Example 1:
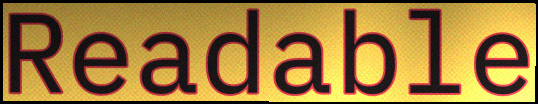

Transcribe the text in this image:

Readable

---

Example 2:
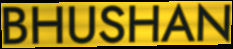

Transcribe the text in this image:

BHUSHAN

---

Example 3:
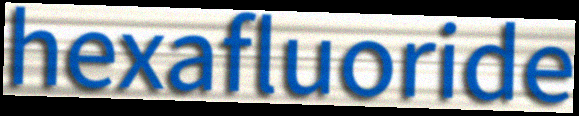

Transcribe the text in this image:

hexafluoride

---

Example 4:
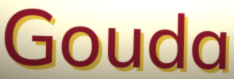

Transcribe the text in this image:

Gouda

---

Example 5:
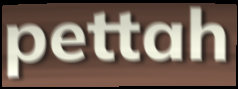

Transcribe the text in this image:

pettah